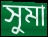
সুমা